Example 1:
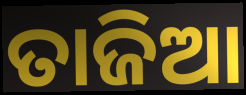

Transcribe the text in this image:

ତାଜିଆ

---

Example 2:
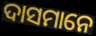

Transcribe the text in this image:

ଦାସମାନେ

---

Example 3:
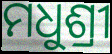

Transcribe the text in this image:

ମଧୁଶ୍ରୀ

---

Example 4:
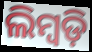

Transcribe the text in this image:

ଲିମ୍ବଡ଼ି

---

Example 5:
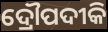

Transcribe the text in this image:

ଦ୍ରୌପଦୀକି